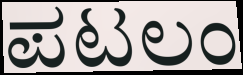
ಪಟಲಂ